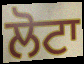
ਲੋਟਾ